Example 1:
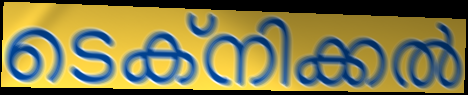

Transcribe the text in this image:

ടെക്നിക്കൽ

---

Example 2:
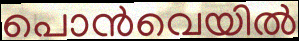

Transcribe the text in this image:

പൊൻവെയിൽ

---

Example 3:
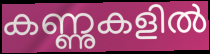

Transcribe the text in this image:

കണ്ണുകളിൽ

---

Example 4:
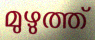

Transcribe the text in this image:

മുഴുത്ത്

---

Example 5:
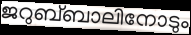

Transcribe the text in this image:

ജറുബ്‌ബാലിനോടും